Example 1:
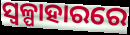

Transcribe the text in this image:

ସ୍ୱଳ୍ପାହାରରେ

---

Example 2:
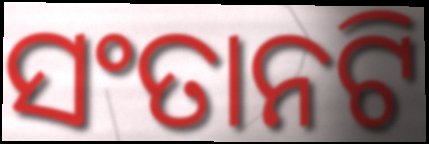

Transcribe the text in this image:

ସଂତାନଟି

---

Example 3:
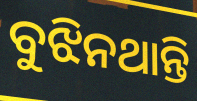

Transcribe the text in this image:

ବୁଝିନଥାନ୍ତି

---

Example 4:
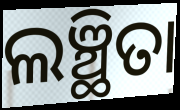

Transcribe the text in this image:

ଲଞ୍ଛିତା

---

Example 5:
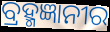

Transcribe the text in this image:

ବ୍ରହ୍ମଜ୍ଞାନୀର